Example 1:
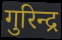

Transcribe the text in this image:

गुरिन्द्र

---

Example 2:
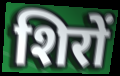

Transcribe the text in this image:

शिरों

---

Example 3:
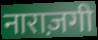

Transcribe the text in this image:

नाराज़गी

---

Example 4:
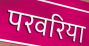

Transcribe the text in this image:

परवरिया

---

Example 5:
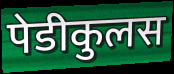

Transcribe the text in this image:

पेडीकुलस